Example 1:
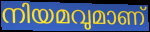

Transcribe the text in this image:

നിയമവുമാണ്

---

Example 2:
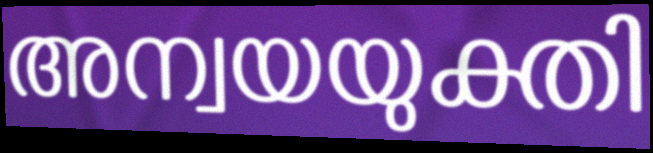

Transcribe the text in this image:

അന്വയയുക്തി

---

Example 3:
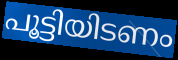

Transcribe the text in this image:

പൂട്ടിയിടണം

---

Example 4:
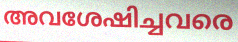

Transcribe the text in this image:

അവശേഷിച്ചവരെ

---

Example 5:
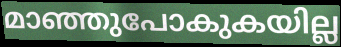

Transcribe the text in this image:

മാഞ്ഞുപോകുകയില്ല